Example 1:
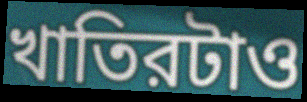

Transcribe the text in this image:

খাতিরটাও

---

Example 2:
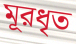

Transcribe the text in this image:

মূরধৃত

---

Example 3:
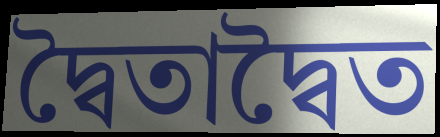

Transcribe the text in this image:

দ্বৈতাদ্বৈত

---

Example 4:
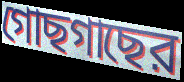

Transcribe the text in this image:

গোছগাছের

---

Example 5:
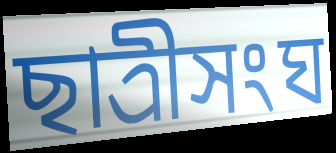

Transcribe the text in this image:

ছাত্রীসংঘ